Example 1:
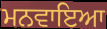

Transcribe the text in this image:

ਮਨਵਾਇਆ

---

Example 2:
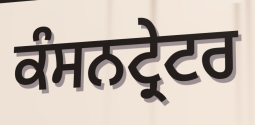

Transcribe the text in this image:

ਕੰਸਨਟ੍ਰੇਟਰ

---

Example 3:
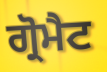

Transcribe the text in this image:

ਗ੍ਰੋਮੈਟ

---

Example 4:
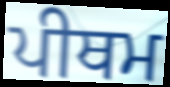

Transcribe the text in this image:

ਪੀਥਮ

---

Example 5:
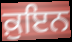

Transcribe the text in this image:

ਕ਼ੁਇਨ